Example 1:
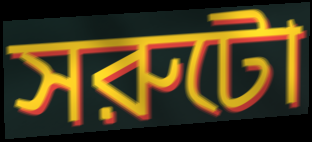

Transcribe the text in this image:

সৰুটো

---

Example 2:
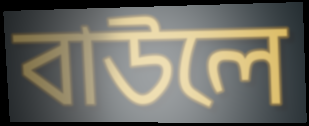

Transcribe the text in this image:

বাউলে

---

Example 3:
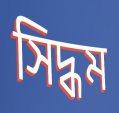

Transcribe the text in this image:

সিদ্ধম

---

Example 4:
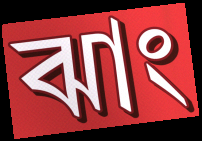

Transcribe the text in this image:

ঝাং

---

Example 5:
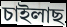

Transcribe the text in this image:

চাইলাছ